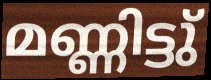
മണ്ണിട്ടു്